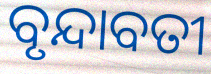
ବୃନ୍ଦାବତୀ